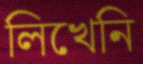
লিখেনি